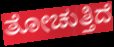
ತೋಚುತ್ತಿದೆ